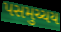
પસમુચ્ચય